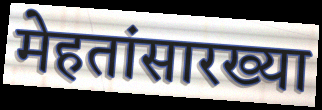
मेहतांसारख्या